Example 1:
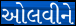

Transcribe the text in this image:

ઓલવીને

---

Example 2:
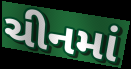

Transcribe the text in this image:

ચીનમાં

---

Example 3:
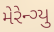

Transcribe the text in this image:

મેરેન્ગ્યુ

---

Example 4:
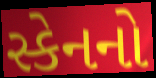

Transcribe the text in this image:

સ્કેનનો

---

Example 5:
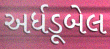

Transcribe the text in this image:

અર્ધડૂબેલ